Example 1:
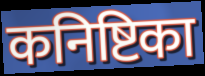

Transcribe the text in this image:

कनिष्टिका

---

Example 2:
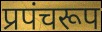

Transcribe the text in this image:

प्रपंचरूप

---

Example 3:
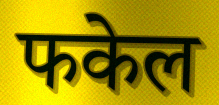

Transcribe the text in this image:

फकेल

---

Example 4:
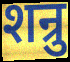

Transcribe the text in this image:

शन्रु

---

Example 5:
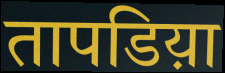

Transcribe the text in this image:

तापडिय़ा